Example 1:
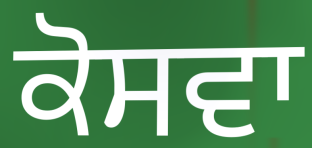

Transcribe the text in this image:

ਕੋਸਵਾ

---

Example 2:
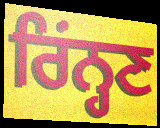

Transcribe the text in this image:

ਰਿਂਨ੍ਹਣ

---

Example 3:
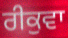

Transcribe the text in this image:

ਰੀਕੁਵਾ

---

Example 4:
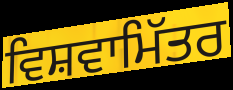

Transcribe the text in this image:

ਵਿਸ਼ਵਾਮਿੱਤਰ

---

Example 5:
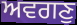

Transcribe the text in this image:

ਅਵਗਣੁ